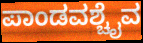
ಪಾಂಡವಶ್ಚೈವ